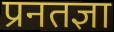
प्रनतज्ञा